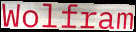
Wolfram